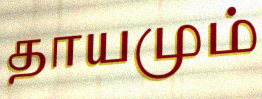
தாயமும்